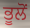
ਭੂਲੋਂ